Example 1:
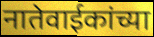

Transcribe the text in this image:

नातेवाईकांच्या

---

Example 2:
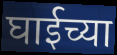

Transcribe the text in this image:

घाईच्या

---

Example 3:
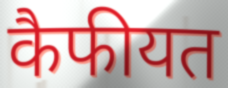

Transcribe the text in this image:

कैफीयत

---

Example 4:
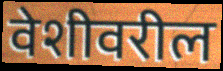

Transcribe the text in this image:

वेशीवरील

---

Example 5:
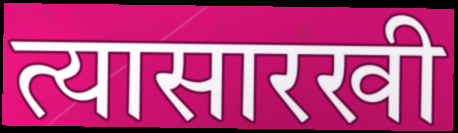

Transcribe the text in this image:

त्यासारखी